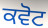
ਕਵੋਟ